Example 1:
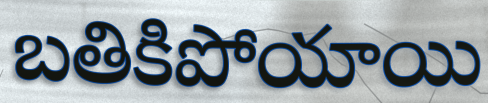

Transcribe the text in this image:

బతికిపోయాయి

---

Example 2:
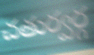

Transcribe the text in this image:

చతుర్వర్గ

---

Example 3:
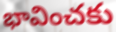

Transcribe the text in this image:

భావించకు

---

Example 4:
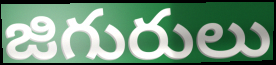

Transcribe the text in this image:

జిగురులు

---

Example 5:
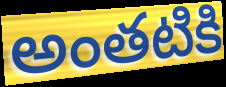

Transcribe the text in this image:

అంతటికి